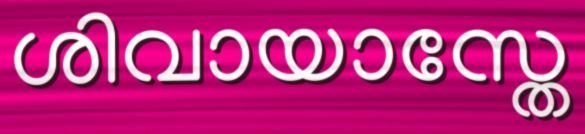
ശിവായാസ്തേ